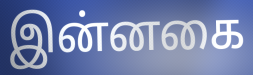
இன்னகை